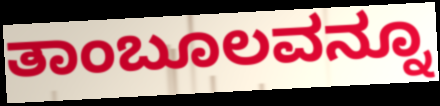
ತಾಂಬೂಲವನ್ನೂ